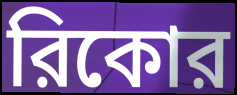
রিকোর